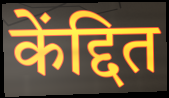
केंद्दित